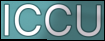
ICCU